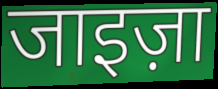
जाइज़ा